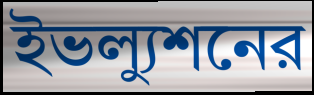
ইভল্যুশনের